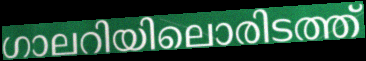
ഗാലറിയിലൊരിടത്ത്